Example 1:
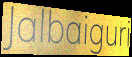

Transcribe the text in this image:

Jalbaiguri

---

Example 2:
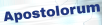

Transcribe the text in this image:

Apostolorum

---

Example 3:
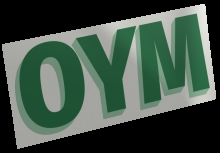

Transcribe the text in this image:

OYM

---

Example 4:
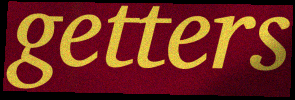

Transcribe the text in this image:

getters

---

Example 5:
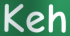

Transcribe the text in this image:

Keh